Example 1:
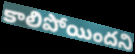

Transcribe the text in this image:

కాలిపోయిందని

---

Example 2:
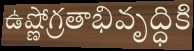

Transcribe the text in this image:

ఉష్ణోగ్రతాభివృద్ధికి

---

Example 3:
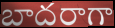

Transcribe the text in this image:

బాదరాగా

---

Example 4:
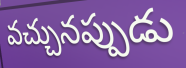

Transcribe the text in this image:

వచ్చునప్పుడు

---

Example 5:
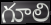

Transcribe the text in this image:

గూలి